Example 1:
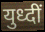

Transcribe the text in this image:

युध्दीं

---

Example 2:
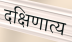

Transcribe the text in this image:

दक्षिणात्य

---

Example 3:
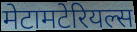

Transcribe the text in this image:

मेटामटेरियल्स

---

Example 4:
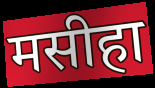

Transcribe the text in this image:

मसीहा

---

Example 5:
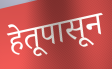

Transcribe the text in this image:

हेतूपासून